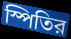
স্পিতির